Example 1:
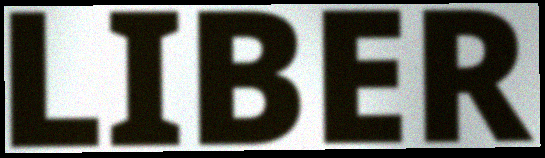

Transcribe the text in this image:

LIBER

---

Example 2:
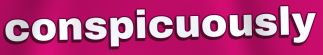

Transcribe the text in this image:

conspicuously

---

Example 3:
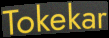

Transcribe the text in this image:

Tokekar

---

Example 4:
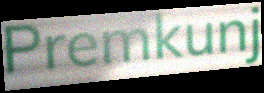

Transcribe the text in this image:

Premkunj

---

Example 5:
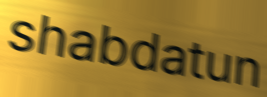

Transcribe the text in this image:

shabdatun